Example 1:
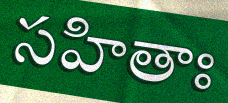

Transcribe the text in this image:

సహితాః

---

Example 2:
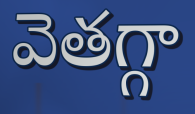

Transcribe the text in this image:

వెతగ్గా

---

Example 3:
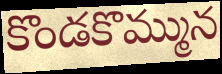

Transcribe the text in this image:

కొండకొమ్మున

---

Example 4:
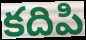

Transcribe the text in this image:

కదిపి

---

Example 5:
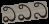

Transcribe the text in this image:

వివిని